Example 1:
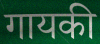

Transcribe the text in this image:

गायकी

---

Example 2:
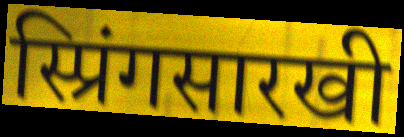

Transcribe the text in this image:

स्प्रिंगसारखी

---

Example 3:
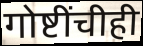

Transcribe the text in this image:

गोष्टींचीही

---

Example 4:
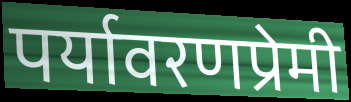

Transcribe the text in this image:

पर्यावरणप्रेमी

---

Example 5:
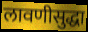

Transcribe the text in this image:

लावणीसुद्धा